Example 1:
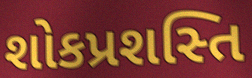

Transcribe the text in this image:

શોકપ્રશસ્તિ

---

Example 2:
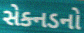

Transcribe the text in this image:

સેક્નડનો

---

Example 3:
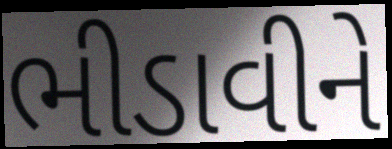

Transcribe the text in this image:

ભીડાવીને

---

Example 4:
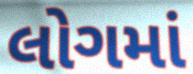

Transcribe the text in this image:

લોગમાં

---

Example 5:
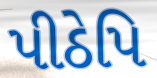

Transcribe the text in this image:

પીઠેપિ